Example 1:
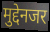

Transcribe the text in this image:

मुद्देनजर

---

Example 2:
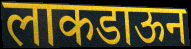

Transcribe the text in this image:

लाकडाऊन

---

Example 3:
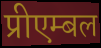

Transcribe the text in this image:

प्रीएम्बल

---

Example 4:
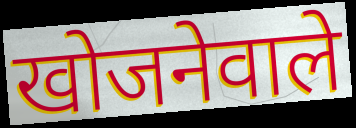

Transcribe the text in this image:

खोजनेवाले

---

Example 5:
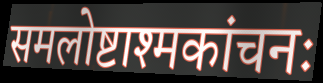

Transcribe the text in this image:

समलोष्टाश्मकांचनः